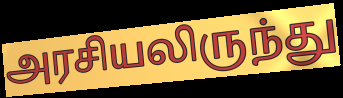
அரசியலிருந்து